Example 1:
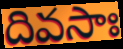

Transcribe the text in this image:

దివసాః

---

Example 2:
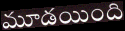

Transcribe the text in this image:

మూడయింది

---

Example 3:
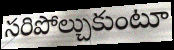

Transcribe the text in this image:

సరిపోల్చుకుంటూ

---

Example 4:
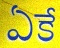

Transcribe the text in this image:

ఏకే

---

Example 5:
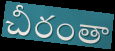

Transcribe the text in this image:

చీరంతా